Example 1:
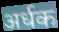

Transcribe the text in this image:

अर्धक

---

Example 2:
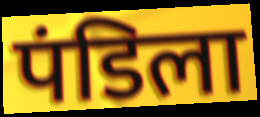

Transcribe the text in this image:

पंडिला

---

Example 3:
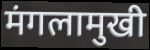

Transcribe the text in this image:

मंगलामुखी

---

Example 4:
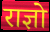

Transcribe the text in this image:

राज्ञो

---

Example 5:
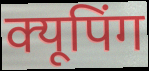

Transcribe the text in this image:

क्यूपिंग